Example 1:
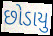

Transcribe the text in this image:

છોડાયુ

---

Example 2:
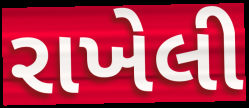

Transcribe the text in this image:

રાખેલી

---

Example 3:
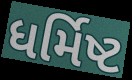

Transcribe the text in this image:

ધર્મિષ્ટ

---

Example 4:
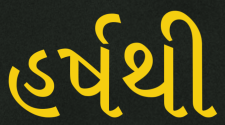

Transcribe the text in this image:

હર્ષથી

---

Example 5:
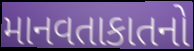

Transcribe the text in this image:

માનવતાકાતનો